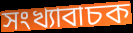
সংখ্যাবাচক